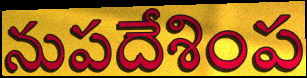
నుపదేశింప